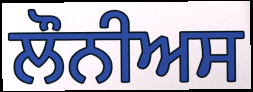
ਲੌਨੀਅਸ